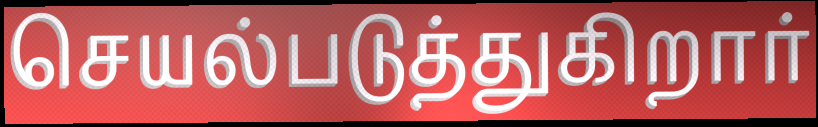
செயல்படுத்துகிறார்